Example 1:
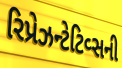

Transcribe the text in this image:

રિપ્રેઝન્ટેટિવ્સની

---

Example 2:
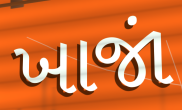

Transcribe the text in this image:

ખાજાં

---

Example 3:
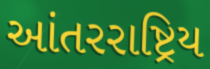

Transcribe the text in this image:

આંતરરાષ્ટ્રિય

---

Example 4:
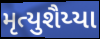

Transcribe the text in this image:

મૃત્યુશૈય્યા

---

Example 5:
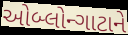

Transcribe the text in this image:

ઓબ્લોન્ગાટાને